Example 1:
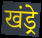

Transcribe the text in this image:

खंड्रे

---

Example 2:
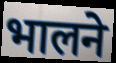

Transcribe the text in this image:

भालने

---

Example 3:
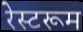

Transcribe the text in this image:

रेस्टरूम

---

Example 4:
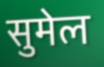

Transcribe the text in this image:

सुमेल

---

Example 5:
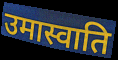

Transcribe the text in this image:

उमास्वाति